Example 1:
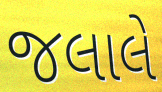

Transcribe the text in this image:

જલાલે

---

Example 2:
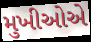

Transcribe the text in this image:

મુખીઓએ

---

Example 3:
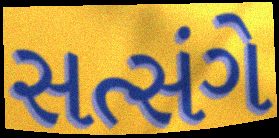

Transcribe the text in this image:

સત્સંગે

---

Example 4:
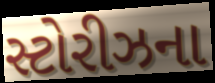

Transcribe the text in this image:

સ્ટોરીઝના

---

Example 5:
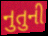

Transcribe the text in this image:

નુતુની